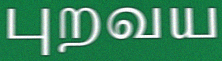
புறவய